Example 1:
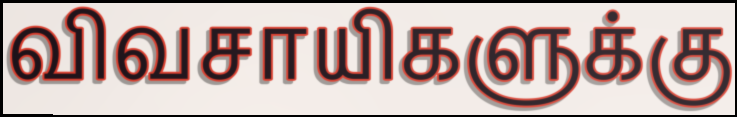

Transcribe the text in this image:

விவசாயிகளுக்கு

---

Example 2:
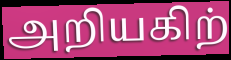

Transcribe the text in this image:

அறியகிற்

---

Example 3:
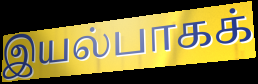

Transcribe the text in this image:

இயல்பாகக்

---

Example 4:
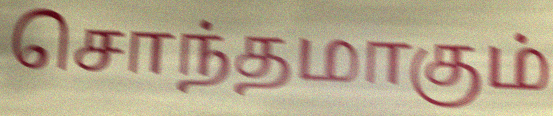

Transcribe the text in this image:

சொந்தமாகும்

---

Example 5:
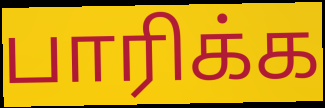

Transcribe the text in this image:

பாரிக்க